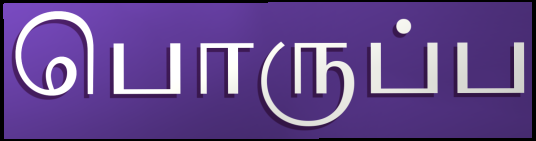
பொருப்ப